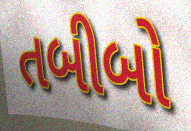
તબીબો